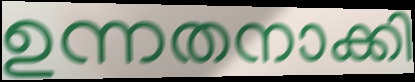
ഉന്നതനാക്കി